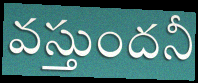
వస్తుందనీ